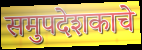
समुपदेशकाचे